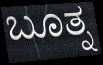
ಬೂತ್ನ